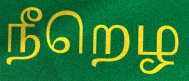
நீறெழ